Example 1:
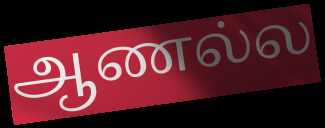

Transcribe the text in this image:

ஆணல்ல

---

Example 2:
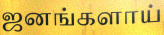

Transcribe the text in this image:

ஜனங்களாய்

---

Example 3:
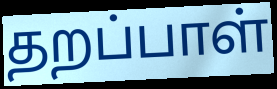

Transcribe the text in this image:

தறப்பாள்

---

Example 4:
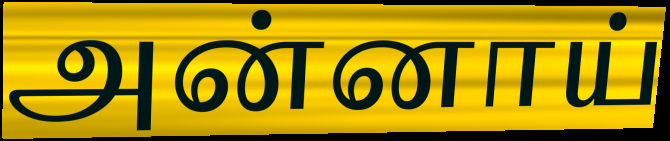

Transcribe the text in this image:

அன்னாய்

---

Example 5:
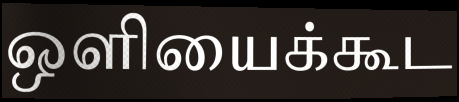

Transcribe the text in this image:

ஒளியைக்கூட